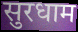
सुरधाम